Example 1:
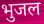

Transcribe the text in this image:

भुजल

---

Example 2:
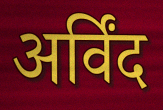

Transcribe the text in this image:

अर्विंद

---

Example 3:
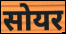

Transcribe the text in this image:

सोयर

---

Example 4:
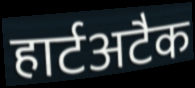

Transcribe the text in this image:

हार्टअटैक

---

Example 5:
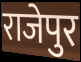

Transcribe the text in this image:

राजेपुर